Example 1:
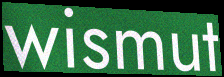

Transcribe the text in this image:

wismut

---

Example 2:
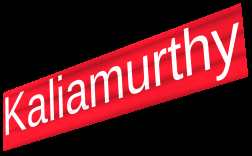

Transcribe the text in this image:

Kaliamurthy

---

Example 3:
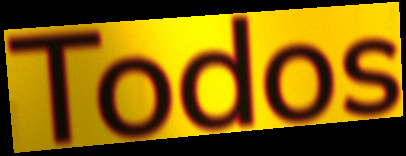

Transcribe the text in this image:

Todos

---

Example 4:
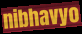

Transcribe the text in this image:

nibhavyo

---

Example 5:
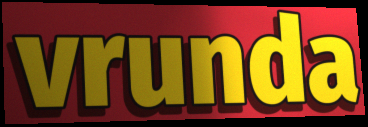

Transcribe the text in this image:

vrunda